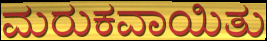
ಮರುಕವಾಯಿತು